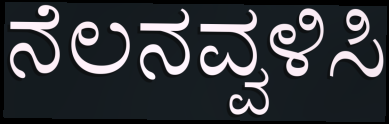
ನೆಲನವ್ವಳಿಸಿ